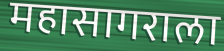
महासागराला